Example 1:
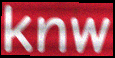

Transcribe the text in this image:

knw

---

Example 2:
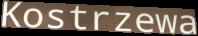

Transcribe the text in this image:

Kostrzewa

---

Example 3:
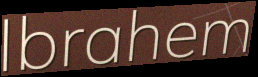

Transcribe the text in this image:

Ibrahem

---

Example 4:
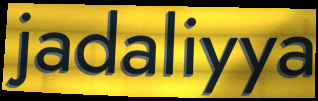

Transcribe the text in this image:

jadaliyya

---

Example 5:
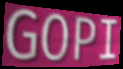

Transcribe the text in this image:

GOPI